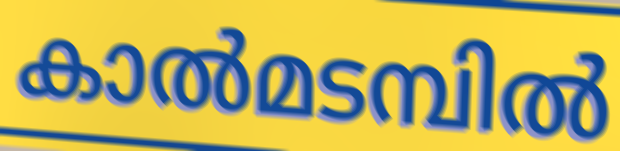
കാൽമടമ്പിൽ